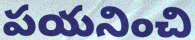
పయనించి